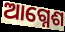
ଆଗ୍ନେଶ